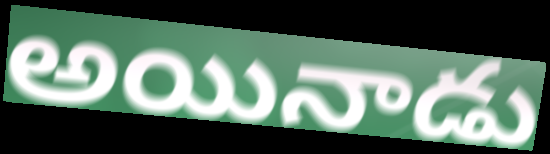
అయినాడు